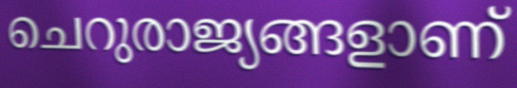
ചെറുരാജ്യങ്ങളാണ്